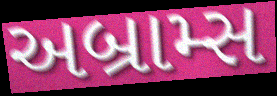
અબ્રામ્સ